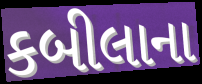
કબીલાના